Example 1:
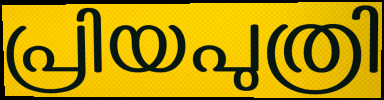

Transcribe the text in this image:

പ്രിയപുത്രി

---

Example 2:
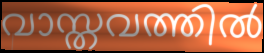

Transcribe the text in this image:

വാസ്തവത്തിൽ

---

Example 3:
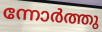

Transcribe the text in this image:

ന്നോർത്തു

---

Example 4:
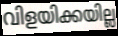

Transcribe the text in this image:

വിളയിക്കയില്ല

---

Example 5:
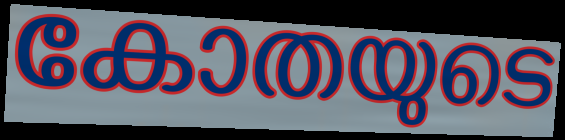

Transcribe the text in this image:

കോതയുടെ